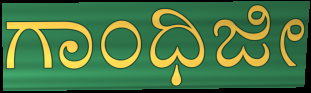
ಗಾಂಧಿಜೀ